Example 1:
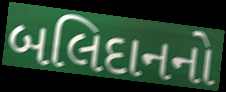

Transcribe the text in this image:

બલિદાનનો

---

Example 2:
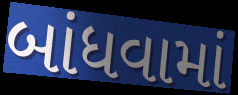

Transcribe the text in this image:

બાંધવામાં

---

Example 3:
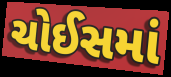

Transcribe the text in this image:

ચોઈસમાં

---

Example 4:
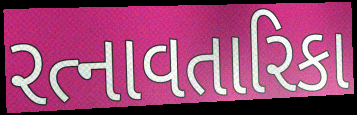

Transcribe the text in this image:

રત્નાવતારિકા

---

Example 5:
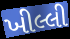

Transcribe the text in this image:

ખીલ્લી